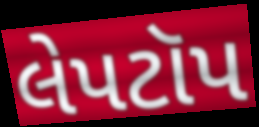
લેપટૉપ